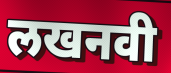
लखनवी